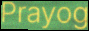
Prayog